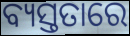
ବ୍ୟସ୍ତତାରେ